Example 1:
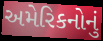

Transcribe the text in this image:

અમેરિકનોનું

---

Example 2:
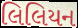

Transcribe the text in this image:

લિલિયન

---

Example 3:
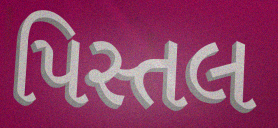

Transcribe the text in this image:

પિસ્તલ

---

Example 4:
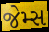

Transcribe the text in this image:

જેમ્સ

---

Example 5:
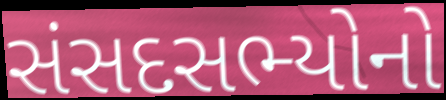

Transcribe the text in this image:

સંસદસભ્યોનો